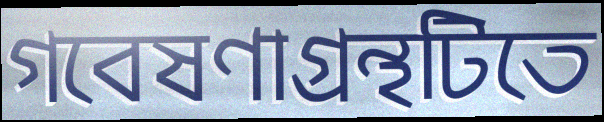
গবেষণাগ্রন্থটিতে